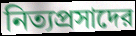
নিত্যপ্রসাদের